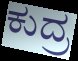
ಕುದ್ರ